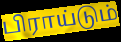
பிராய்டும்